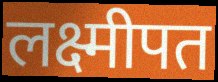
लक्ष्मीपत